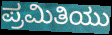
ಪ್ರಮಿತಿಯು